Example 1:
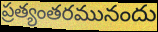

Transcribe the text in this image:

ప్రత్యంతరమునందు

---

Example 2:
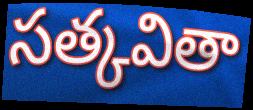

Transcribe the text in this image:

సత్కవితా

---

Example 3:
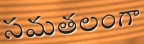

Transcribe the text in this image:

సమతలంగా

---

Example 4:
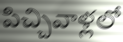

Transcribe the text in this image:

పిచ్చివాళ్లలో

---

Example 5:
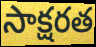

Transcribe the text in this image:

సాక్షరత